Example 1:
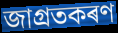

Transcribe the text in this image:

জাগ্ৰতকৰণ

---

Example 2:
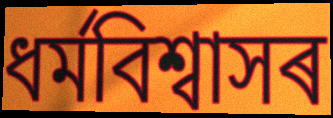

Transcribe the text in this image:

ধৰ্মবিশ্বাসৰ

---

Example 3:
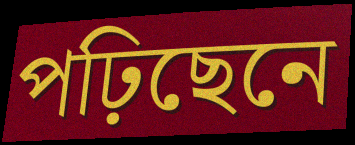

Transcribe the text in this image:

পঢ়িছেনে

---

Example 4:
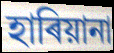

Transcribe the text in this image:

হাৰিয়ানা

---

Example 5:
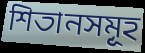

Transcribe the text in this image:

শিতানসমূহ